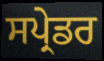
ਸਪ੍ਰੇਡਰ